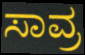
ಸಾವ್ರ